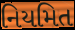
નિયમિત